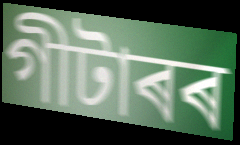
গীটাৰৰ